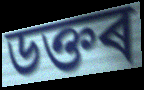
ডক্তৰ